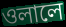
ওলালে